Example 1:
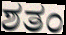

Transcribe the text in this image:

ಶತಂ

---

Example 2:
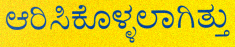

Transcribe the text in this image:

ಆರಿಸಿಕೊಳ್ಳಲಾಗಿತ್ತು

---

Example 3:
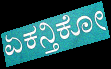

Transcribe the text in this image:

ಏಕನ್ತಿಕೋ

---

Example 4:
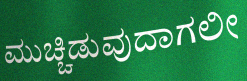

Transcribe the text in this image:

ಮುಚ್ಚಿಡುವುದಾಗಲೀ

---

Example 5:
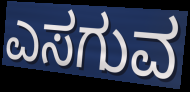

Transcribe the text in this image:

ಎಸಗುವ